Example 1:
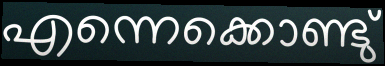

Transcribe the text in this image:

എന്നെക്കൊണ്ടു്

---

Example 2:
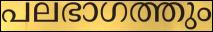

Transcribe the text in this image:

പലഭാഗത്തും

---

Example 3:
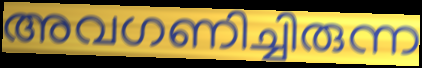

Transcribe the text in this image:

അവഗണിച്ചിരുന്ന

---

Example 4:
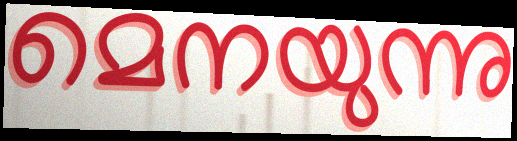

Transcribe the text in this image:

മെനയുന്നു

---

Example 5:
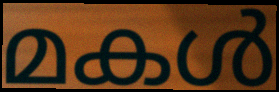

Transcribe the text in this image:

മകൾ